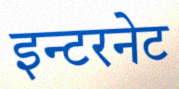
इन्‍टरनेट